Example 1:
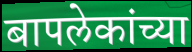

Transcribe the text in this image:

बापलेकांच्या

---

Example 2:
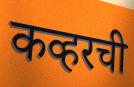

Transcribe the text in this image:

कव्हरची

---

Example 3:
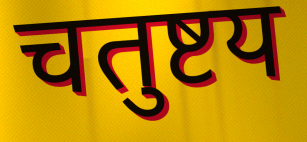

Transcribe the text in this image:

चतुष्टय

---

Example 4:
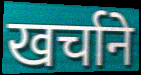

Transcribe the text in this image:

खर्चाने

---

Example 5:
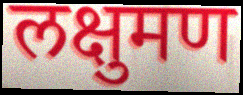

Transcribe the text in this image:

लक्षुमण